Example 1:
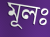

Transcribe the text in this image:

মূলঃ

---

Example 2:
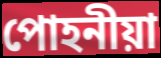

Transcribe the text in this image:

পোহনীয়া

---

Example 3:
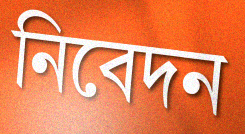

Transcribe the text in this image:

নিবেদন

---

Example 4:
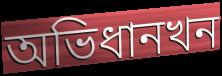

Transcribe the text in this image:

অভিধানখন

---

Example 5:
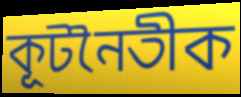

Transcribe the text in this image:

কূটনৈতীক